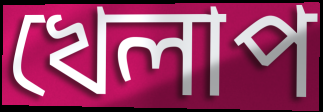
খেলাপ